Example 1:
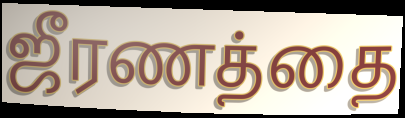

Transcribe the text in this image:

ஜீரணத்தை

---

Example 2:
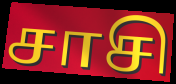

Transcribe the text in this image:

சாசி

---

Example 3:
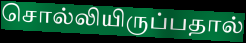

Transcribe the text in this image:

சொல்லியிருப்பதால்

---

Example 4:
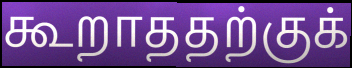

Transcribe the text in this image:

கூறாததற்குக்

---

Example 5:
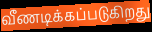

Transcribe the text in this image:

வீணடிக்கப்படுகிறது